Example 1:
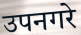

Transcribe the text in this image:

उपनगरे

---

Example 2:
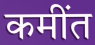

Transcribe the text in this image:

कमींत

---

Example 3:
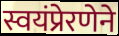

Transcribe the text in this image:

स्वयंप्रेरणेने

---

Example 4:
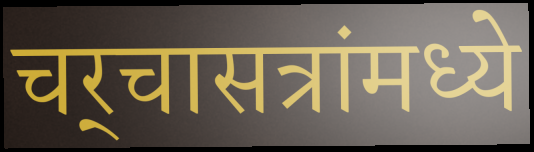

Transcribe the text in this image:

चर्चासत्रांमध्ये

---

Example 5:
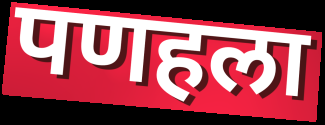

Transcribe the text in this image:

पणहला